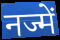
नज्में